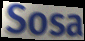
Sosa